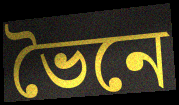
ভৈনে